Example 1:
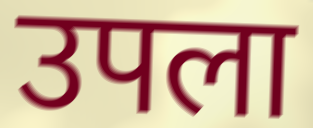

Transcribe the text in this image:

उपला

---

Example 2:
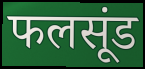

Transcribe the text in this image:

फलसूंड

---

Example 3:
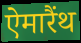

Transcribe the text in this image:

ऐमारैंथ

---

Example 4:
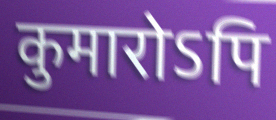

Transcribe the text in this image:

कुमारोऽपि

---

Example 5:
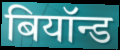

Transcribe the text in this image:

बियॉन्ड